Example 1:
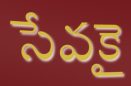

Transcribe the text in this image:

సేవకై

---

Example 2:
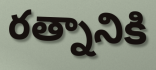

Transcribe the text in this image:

రత్నానికి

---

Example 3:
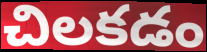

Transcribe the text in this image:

చిలకడం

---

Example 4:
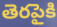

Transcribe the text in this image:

తెరపైకి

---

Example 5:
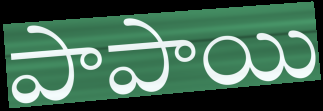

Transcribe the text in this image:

పాపాయి